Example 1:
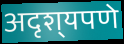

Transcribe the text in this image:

अदृश्यपणे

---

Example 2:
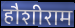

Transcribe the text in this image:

हौशीराम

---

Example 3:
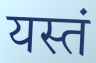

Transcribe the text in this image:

यस्तं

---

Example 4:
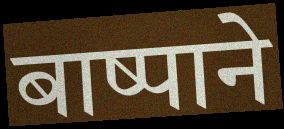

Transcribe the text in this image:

बाष्पाने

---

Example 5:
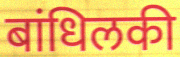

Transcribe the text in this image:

बांधिलकी